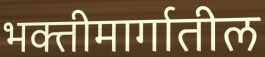
भक्तीमार्गातील